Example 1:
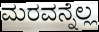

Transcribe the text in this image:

ಮರವನ್ನೆಲ್ಲ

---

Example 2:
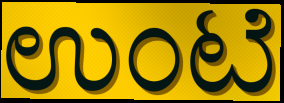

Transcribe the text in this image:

ಉಂಟೆ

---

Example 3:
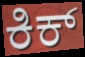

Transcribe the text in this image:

ಕಿಕ್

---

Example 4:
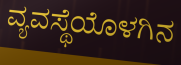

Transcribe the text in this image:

ವ್ಯವಸ್ಥೆಯೊಳಗಿನ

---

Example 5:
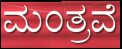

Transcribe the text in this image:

ಮಂತ್ರವೆ